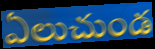
ఏలుచుండ